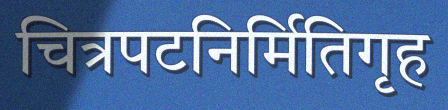
चित्रपटनिर्मितिगृह